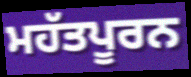
ਮਹੱਤਪੂਰਨ